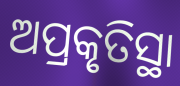
ଅପ୍ରକୃତିସ୍ଥା